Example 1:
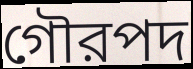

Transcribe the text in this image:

গৌরপদ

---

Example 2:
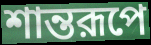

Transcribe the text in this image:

শান্তরূপে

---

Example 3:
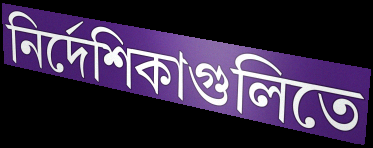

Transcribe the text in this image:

নির্দেশিকাগুলিতে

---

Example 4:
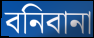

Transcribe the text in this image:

বনিবানা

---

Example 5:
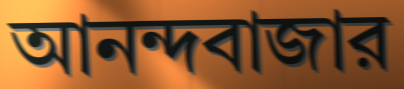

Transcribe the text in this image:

আনন্দবাজার